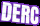
DERC